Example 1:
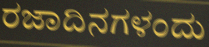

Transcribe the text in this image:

ರಜಾದಿನಗಳಂದು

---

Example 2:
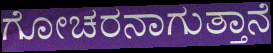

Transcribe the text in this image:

ಗೋಚರನಾಗುತ್ತಾನೆ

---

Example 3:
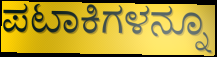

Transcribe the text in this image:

ಪಟಾಕಿಗಳನ್ನೂ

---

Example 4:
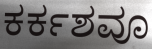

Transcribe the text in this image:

ಕರ್ಕಶವೂ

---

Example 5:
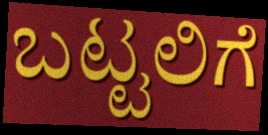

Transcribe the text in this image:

ಬಟ್ಟಲಿಗೆ